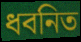
ধবনিত